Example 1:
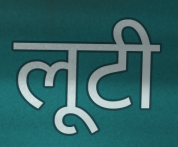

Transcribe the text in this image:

लूटी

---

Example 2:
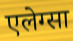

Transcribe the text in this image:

एलेग्सा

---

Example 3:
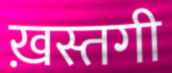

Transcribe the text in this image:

ख़स्तगी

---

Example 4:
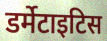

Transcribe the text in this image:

डर्मेटाइटिस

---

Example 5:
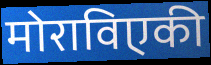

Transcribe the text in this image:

मोराविएकी